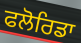
ਫਲੋਰਿਡਾ